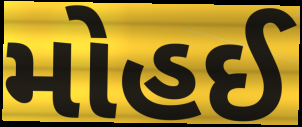
મોહઈ